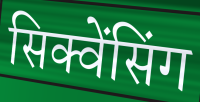
सिक्वेंसिंग